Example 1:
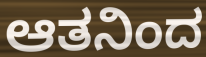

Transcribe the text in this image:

ಆತನಿಂದ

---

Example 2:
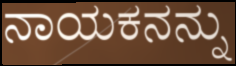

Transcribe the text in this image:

ನಾಯಕನನ್ನು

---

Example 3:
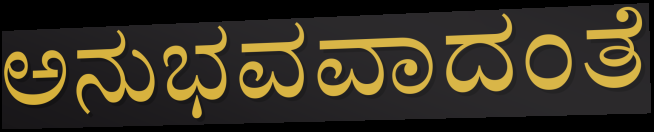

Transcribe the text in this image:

ಅನುಭವವಾದಂತೆ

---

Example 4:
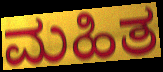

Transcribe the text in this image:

ಮಹಿತ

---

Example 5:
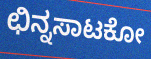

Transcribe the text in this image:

ಛಿನ್ನಸಾಟಕೋ